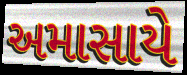
અમાસાયે